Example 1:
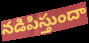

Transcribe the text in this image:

నడిపిస్తుందా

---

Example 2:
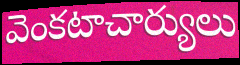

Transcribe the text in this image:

వెంకటాచార్యులు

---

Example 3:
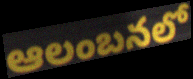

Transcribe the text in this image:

ఆలంబనలో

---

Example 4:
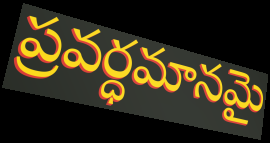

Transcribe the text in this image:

ప్రవర్ధమానమై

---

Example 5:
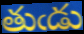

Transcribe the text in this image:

తుఁడు